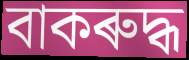
বাকৰুদ্ধ